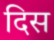
दिस